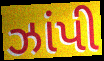
ઝાંપી